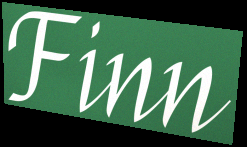
Finn